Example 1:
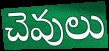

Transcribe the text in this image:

చెవులు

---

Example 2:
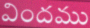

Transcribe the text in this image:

విందము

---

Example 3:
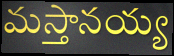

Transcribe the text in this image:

మస్తానయ్య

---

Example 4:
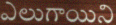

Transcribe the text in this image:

ఎలుగాయిని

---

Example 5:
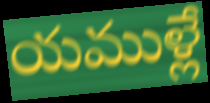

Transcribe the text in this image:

యముళ్లే